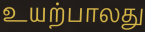
உயற்பாலது